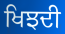
ਖਿਝਦੀ